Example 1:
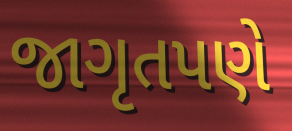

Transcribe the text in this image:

જાગૃતપણે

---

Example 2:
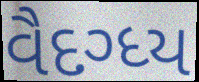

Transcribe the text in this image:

વૈદગ્ધ્ય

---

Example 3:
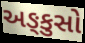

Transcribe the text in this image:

અઙ્કુસો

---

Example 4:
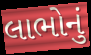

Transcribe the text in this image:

લાભોનું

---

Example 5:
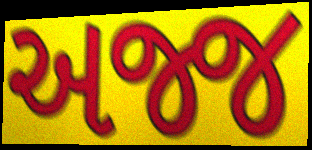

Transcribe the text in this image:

અજ્જ